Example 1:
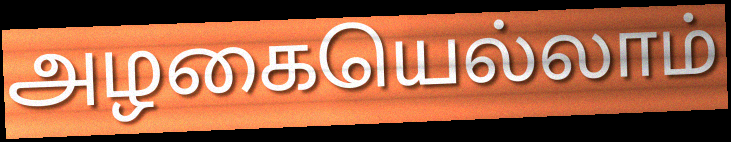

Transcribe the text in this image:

அழகையெல்லாம்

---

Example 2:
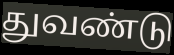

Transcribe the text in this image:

துவண்டு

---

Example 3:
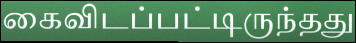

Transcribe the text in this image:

கைவிடப்பட்டிருந்தது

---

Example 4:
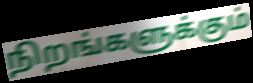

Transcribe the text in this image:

நிறங்களுக்கும்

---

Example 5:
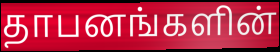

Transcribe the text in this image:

தாபனங்களின்